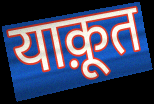
याक़ूत